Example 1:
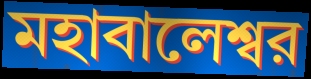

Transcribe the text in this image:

মহাবালেশ্বর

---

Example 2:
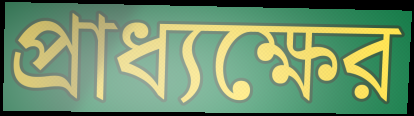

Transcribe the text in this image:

প্রাধ্যক্ষের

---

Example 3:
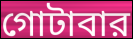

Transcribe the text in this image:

গোটাবার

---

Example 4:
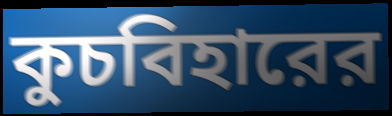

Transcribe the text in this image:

কুচবিহারের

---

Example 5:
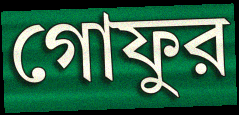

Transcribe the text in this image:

গোফুর